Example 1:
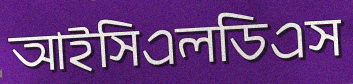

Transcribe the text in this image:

আইসিএলডিএস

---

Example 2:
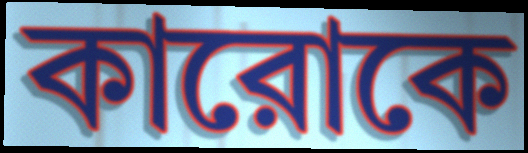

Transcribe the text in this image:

কারোকে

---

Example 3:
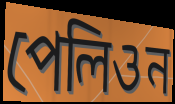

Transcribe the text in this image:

পেলিওন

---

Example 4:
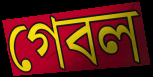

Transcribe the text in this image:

গেবল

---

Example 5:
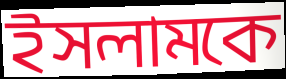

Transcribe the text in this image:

ইসলামকে